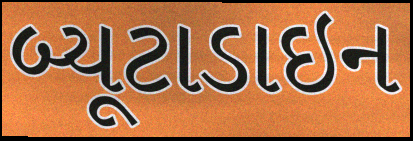
બ્યૂટાડાઇન